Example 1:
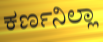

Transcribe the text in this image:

ಕರ್ಣನಿಲ್ಲಾ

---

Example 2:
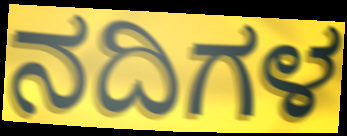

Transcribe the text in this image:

ನದಿಗಳ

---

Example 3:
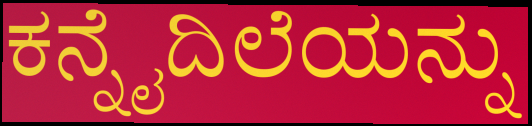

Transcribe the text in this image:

ಕನ್ನೈದಿಲೆಯನ್ನು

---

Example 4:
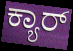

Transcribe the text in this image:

ಕ್ಯಾರ್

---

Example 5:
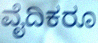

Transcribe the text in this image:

ವೈದಿಕರೂ